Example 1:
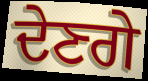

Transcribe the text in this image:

ਦੇਣਗੇ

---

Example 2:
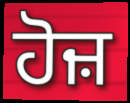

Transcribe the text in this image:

ਹੋਜ਼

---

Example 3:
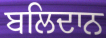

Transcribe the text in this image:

ਬਲਿਦਾਨ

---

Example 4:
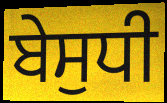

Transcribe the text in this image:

ਬੇਸੁਧੀ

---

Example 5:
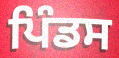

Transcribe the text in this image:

ਪਿੰਡਸ